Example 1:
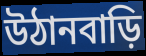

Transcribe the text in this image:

উঠানবাড়ি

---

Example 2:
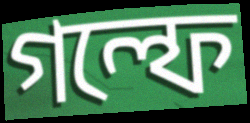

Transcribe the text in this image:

গল্ফে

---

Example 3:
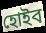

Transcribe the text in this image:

হোইব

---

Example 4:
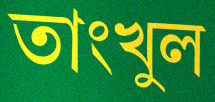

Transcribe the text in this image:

তাংখুল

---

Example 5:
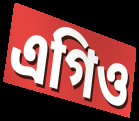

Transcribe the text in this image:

এগিও